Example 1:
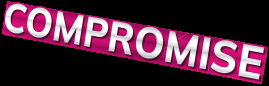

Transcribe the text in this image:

COMPROMISE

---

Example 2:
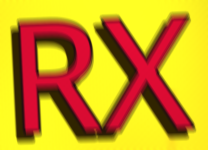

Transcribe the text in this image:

RX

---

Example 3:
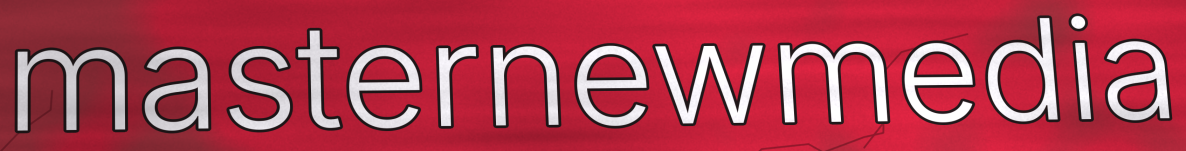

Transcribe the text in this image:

masternewmedia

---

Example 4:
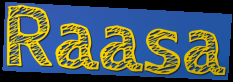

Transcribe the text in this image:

Raasa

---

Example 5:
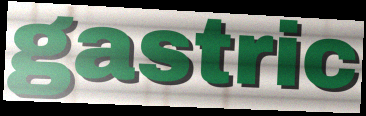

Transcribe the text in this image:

gastric